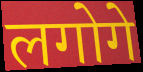
लगोगे